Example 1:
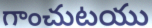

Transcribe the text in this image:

గాంచుటయు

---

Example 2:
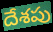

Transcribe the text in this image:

దేశపు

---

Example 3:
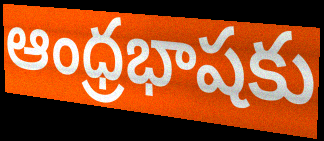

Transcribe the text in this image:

ఆంధ్రభాషకు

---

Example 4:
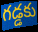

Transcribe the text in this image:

గడ్డకు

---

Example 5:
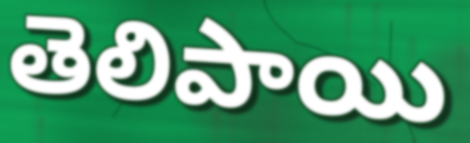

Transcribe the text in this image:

తెలిపాయి